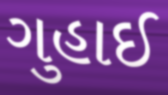
ગુહાઈ